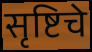
सृष्टिचे